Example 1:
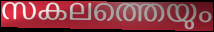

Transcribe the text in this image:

സകലത്തെയും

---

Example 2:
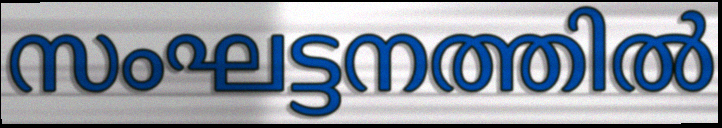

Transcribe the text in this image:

സംഘട്ടനത്തിൽ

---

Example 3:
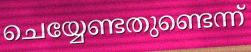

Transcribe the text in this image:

ചെയ്യേണ്ടതുണ്ടെന്ന്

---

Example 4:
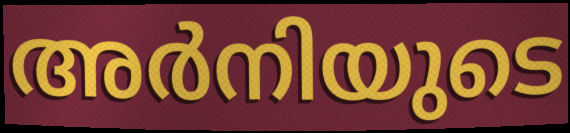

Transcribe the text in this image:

അർനിയുടെ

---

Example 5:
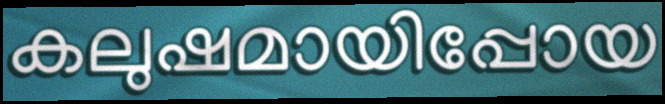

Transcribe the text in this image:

കലുഷമായിപ്പോയ